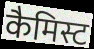
कैमिस्ट